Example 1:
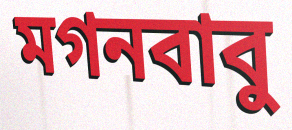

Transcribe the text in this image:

মগনবাবু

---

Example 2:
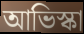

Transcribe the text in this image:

আভিস্কা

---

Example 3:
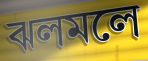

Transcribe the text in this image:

ঝলমলে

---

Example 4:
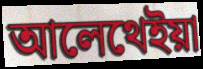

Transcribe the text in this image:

আলেথেইয়া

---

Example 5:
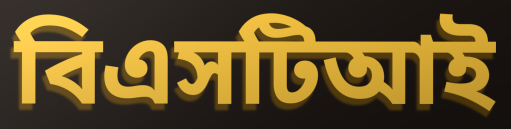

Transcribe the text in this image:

বিএসটিআই